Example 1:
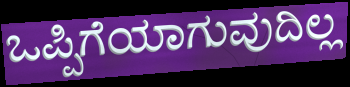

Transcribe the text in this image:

ಒಪ್ಪಿಗೆಯಾಗುವುದಿಲ್ಲ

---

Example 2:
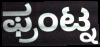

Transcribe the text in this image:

ಫ್ರಂಟ್ನ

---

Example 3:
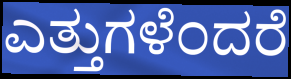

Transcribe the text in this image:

ಎತ್ತುಗಳೆಂದರೆ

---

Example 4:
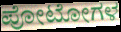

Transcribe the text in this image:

ಪೋಟೋಗಳ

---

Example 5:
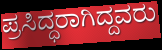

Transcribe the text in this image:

ಪ್ರಸಿದ್ಧರಾಗಿದ್ದವರು